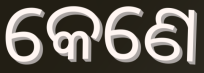
କେଣେ